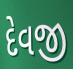
દેવજી